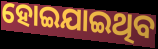
ହୋଇଯାଇଥିବ